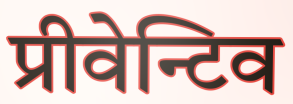
प्रीवेन्टिव